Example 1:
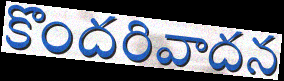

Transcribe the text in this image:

కొందరివాదన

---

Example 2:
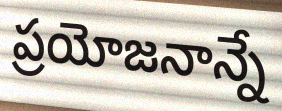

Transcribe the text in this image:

ప్రయోజనాన్నే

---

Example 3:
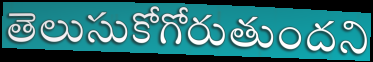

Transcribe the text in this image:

తెలుసుకోగోరుతుందని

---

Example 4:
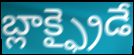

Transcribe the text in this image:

బ్లాక్ఫ్రైడే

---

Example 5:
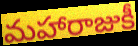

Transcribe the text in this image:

మహారాజుకీ